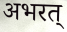
अभरत्